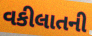
વકીલાતની